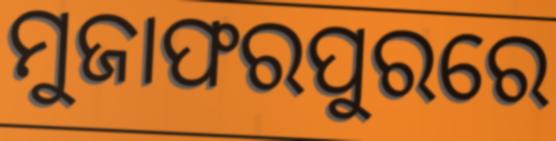
ମୁଜାଫରପୁରରେ